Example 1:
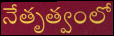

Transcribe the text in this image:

నేతృత్వంలో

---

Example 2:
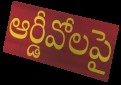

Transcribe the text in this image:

ఆర్డీవోలపై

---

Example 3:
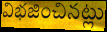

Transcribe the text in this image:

విభజించినట్లు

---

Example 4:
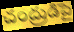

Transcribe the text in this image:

చంద్రుడిపై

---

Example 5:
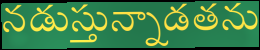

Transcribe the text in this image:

నడుస్తున్నాడతను